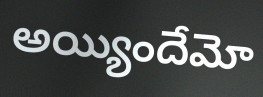
అయ్యిందేమో